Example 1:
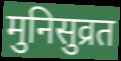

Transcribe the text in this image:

मुनिसुव्रत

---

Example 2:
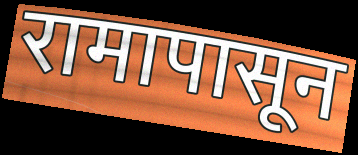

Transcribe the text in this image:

रामापासून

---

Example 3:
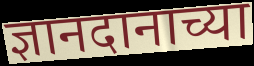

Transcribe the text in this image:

ज्ञानदानाच्या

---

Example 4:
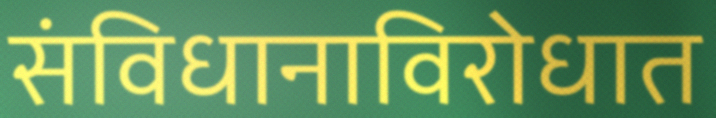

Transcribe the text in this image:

संविधानाविरोधात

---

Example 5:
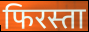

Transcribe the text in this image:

फिरस्ता